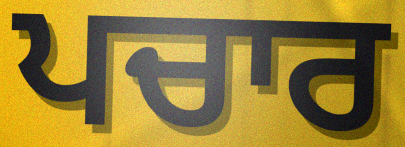
ਪਚਾਰ